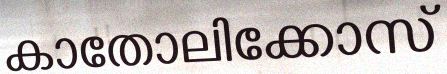
കാതോലിക്കോസ്